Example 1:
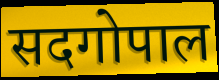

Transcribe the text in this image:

सदगोपाल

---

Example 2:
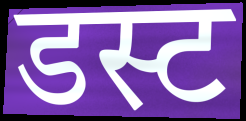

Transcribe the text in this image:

डस्ट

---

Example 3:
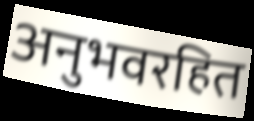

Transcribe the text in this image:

अनुभवरहित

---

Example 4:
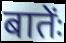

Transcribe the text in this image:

बातेंः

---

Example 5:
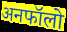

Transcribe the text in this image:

अनफॉलो